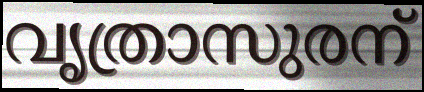
വൃത്രാസുരന്